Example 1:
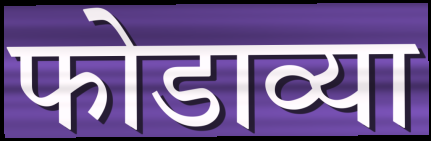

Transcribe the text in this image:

फोडाव्या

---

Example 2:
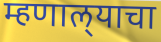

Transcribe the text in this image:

म्हणाल्याचा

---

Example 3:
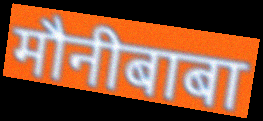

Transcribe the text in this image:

मौनीबाबा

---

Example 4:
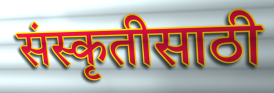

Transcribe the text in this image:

संस्कृतीसाठी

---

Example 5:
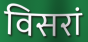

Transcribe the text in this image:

विसरां